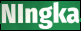
NIngka